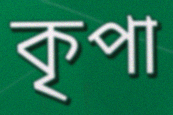
কৃপা